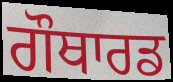
ਗੌਥਾਰਡ